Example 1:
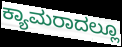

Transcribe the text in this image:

ಕ್ಯಾಮರಾದಲ್ಲೂ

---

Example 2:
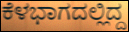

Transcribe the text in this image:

ಕೆಳಭಾಗದಲ್ಲಿದ್ದ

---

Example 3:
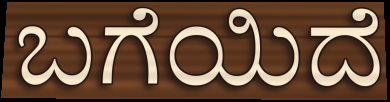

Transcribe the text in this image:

ಬಗೆಯಿದೆ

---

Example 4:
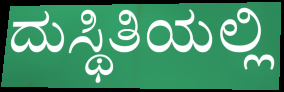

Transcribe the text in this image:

ದುಸ್ಥಿತಿಯಲ್ಲಿ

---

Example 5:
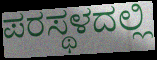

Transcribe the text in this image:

ಪರಸ್ಥಳದಲ್ಲಿ